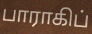
பாராகிப்